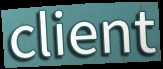
client